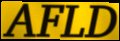
AFLD